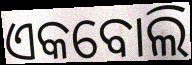
ଏକବୋଲି